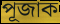
পূজাক